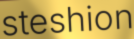
steshion